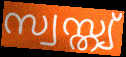
സ്വസ്ത്യ്